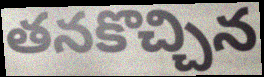
తనకొచ్చిన